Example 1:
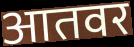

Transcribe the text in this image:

आतवर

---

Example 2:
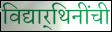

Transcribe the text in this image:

विद्यार्थिनींची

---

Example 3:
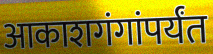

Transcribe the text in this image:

आकाशगंगांपर्यंत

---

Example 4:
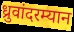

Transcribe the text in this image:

ध्रुवांदरम्यान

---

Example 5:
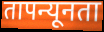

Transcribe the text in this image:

तापन्यूनता